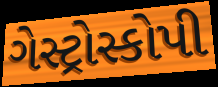
ગેસ્ટ્રોસ્કોપી